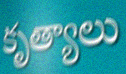
కృత్యాలు